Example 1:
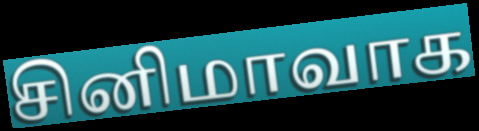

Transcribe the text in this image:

சினிமாவாக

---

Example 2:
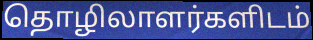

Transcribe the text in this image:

தொழிலாளர்களிடம்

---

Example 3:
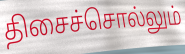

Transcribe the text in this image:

திசைச்சொல்லும்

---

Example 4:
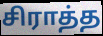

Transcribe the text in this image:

சிராத்த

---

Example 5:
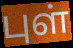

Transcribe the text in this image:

புள்